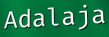
Adalaja